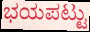
ಭಯಪಟ್ಟು